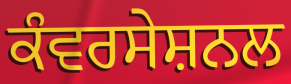
ਕੰਵਰਸੇਸ਼ਨਲ